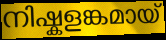
നിഷ്കളങ്കമായ്